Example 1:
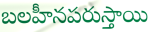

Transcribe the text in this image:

బలహీనపరుస్తాయి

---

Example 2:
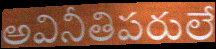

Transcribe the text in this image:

అవినీతిపరులే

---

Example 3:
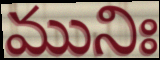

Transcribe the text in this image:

మునిః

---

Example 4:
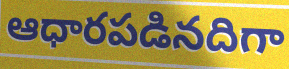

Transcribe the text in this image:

ఆధారపడినదిగా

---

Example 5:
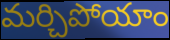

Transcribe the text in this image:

మర్చిపోయాం